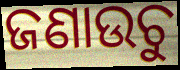
ଜଣାଉଚୁ